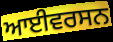
ਆਈਵਰਸਨ